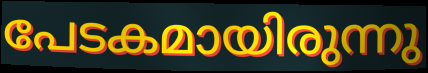
പേടകമായിരുന്നു